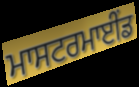
ਮਾਸਟਰਮਾਈੰਡ